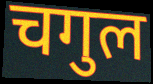
चगुल